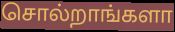
சொல்றாங்களா